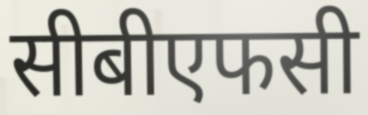
सीबीएफसी